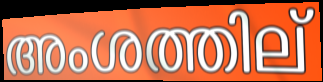
അംശത്തില്